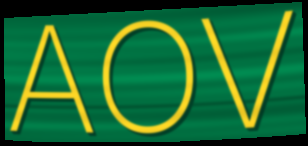
AOV